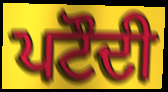
ਪਟੌਦੀ